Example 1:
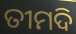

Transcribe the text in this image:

ତୀମଦି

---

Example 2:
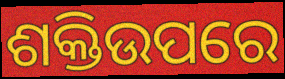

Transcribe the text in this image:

ଶକ୍ତିଉପରେ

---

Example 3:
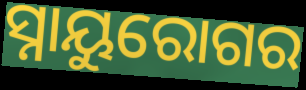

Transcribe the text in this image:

ସ୍ନାୟୁରୋଗର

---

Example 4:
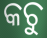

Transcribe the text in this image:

କଚୁ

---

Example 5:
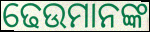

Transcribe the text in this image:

ଢେଉମାନଙ୍କ